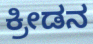
ಕ್ರೀಡನ